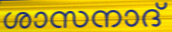
ശാസനാദ്